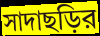
সাদাছড়ির